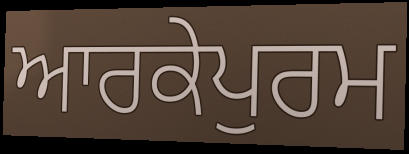
ਆਰਕੇਪੁਰਮ